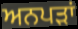
ਅਨਪੜਾਂ